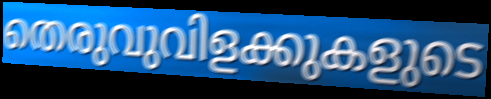
തെരുവുവിളക്കുകളുടെ